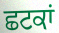
ਛਟਕਾਂ